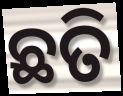
ଛତି